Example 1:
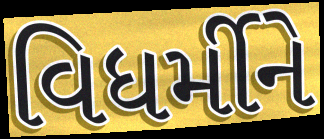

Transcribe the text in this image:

વિધર્મીને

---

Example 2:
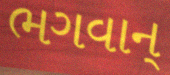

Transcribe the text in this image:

ભગવાન્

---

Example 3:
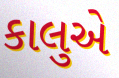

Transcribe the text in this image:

કાલુએ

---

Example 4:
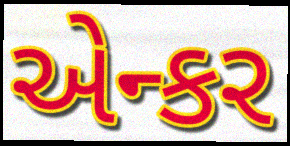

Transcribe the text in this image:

એન્કર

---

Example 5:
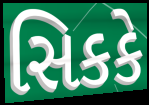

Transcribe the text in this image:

સિકકે